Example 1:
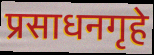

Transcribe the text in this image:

प्रसाधनगृहे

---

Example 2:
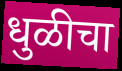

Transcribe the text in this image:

धुळीचा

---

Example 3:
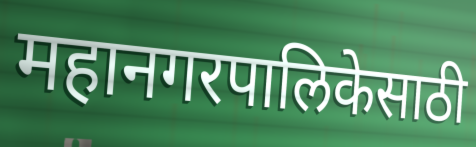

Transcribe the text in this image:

महानगरपालिकेसाठी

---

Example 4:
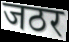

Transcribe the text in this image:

जठर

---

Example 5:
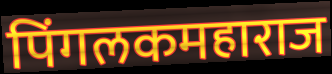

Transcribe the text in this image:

पिंगलकमहाराज